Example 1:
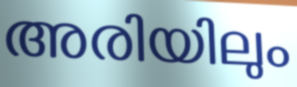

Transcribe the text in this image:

അരിയിലും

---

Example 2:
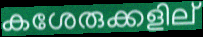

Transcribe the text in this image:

കശേരുക്കളില്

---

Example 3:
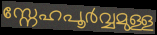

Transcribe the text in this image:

സ്നേഹപൂർവ്വമുള്ള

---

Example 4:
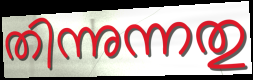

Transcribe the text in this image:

തിന്നുന്നതു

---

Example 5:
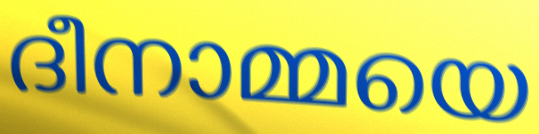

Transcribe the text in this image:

ദീനാമ്മയെ